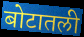
बोटातली